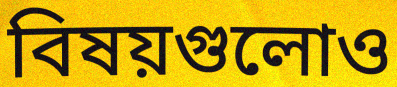
বিষয়গুলোও